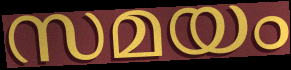
സമയം